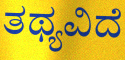
ತಥ್ಯವಿದೆ